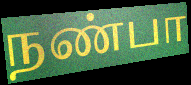
நண்பா